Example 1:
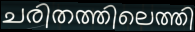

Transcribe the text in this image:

ചരിതത്തിലെത്തി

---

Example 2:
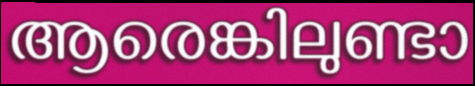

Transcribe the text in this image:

ആരെങ്കിലുണ്ടാ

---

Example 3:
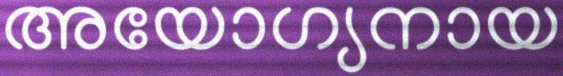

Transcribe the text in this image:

അയോഗ്യനായ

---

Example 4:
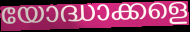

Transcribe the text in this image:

യോദ്ധാക്കളെ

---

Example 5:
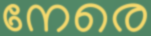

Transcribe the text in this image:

നേരെ